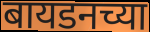
बायडनच्या